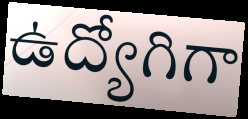
ఉద్యోగిగా